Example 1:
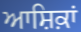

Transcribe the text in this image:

ਆਸ਼ਿਕ਼ਾਂ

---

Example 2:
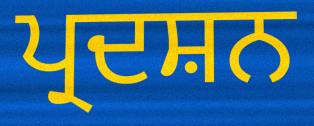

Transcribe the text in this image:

ਪ੍ਰਦਸ਼ਨ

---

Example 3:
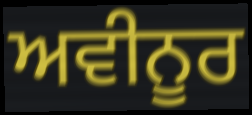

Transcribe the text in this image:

ਅਵੀਨੂਰ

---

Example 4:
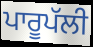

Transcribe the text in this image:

ਪਾਰੂਪੱਲੀ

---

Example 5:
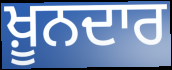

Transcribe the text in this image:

ਖ਼ੂਨਦਾਰ